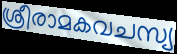
ശ്രീരാമകവചസ്യ